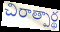
చిరాత్పార్థ